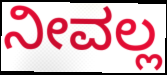
ನೀವಲ್ಲ